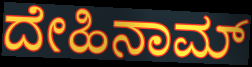
ದೇಹಿನಾಮ್